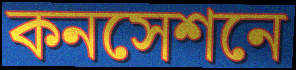
কনসেশনে